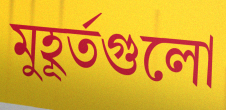
মুহূর্তগুলো